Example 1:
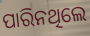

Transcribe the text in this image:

ପାରିନଥିଲେ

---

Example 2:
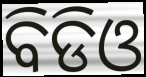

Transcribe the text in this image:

ବିଡିଓ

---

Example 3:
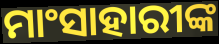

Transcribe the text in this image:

ମାଂସାହାରୀଙ୍କ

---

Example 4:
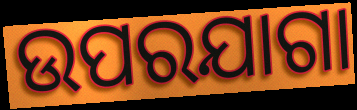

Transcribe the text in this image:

ଉପରଯାଗା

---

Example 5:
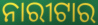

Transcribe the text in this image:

ନାରୀଟାର